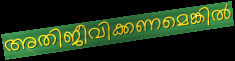
അതിജീവിക്കണമെങ്കിൽ